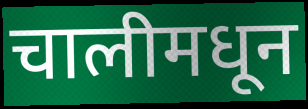
चालीमधून